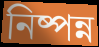
নিষ্পন্ন